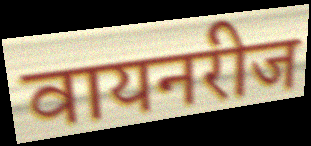
वायनरीज